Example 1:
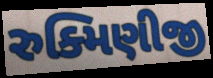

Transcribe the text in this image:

રુક્મિણીજી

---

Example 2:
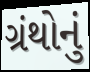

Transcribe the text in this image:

ગ્રંથોનું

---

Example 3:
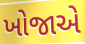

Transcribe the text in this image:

ખોજાએ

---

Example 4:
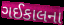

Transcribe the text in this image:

ગઈકાલના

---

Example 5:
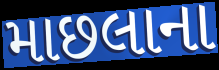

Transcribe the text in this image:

માછલાના